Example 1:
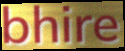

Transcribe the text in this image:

bhire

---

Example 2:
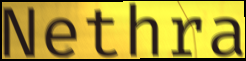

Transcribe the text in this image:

Nethra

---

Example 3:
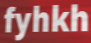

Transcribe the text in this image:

fyhkh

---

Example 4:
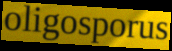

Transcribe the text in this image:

oligosporus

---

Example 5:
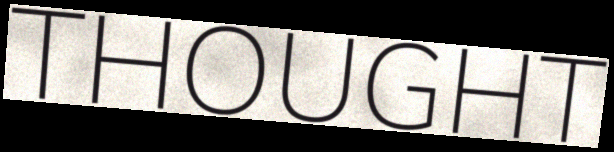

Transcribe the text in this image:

THOUGHT